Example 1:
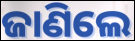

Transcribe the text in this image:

ଜାଣିଲେ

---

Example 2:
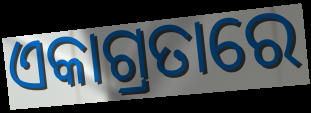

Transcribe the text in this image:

ଏକାଗ୍ରତାରେ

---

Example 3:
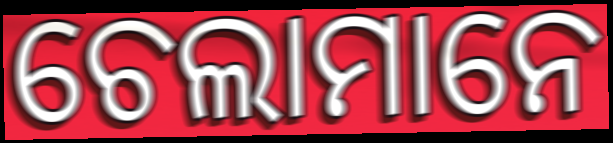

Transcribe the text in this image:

ଚେଲାମାନେ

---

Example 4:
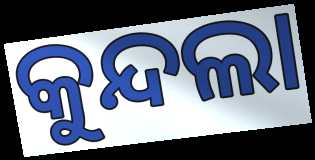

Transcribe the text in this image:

କୁନ୍ଦଲା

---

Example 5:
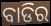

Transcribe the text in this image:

ବାଡିର